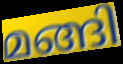
മങ്ങി